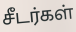
சீடர்கள்